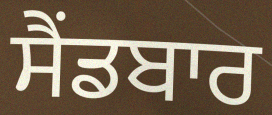
ਸੈਂਡਬਾਰ